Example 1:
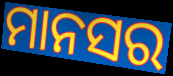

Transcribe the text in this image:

ମାନସର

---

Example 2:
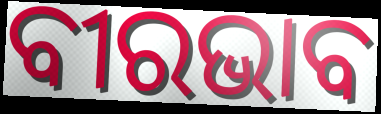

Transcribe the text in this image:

ବୀରଭାବ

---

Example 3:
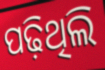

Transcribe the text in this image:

ପଢ଼ିଥିଲି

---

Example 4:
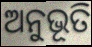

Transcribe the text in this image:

ଅନୁଭୂତି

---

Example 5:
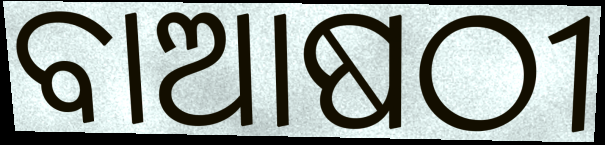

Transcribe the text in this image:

ବାଆଷଠୀ